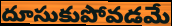
దూసుకుపోవడమే